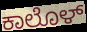
ಕಾಲೊಳ್